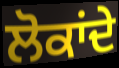
ਲੋਕਾਂਦੇ